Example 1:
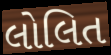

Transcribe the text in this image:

લોલિત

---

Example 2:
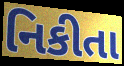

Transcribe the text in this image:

નિકીતા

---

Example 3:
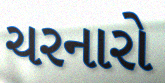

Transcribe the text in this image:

ચરનારો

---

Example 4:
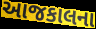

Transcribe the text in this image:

આજકાલના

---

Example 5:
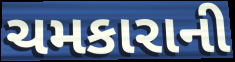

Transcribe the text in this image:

ચમકારાની